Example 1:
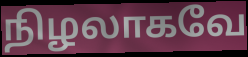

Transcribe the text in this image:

நிழலாகவே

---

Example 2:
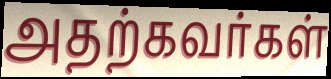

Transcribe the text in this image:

அதற்கவர்கள்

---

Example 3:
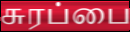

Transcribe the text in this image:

சுரப்பை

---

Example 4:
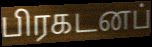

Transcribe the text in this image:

பிரகடனப்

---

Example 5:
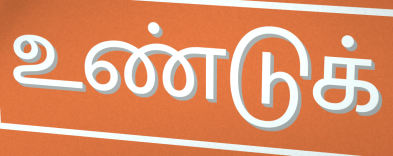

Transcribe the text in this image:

உண்டுக்